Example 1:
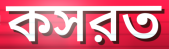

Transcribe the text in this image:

কসরত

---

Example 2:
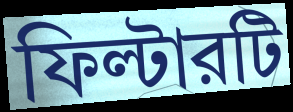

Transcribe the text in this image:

ফিল্টারটি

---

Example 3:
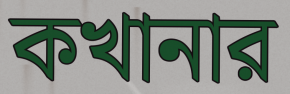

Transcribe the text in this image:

কখানার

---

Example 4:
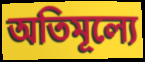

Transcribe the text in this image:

অতিমূল্যে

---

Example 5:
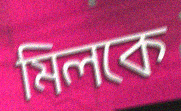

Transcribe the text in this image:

মিলকে